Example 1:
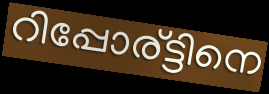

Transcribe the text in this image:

റിപ്പോര്ട്ടിനെ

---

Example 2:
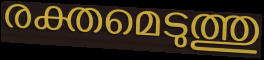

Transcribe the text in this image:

രക്തമെടുത്തു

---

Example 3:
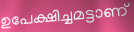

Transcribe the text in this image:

ഉപേക്ഷിച്ചമട്ടാണ്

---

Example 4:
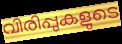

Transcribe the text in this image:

വിരിപ്പുകളുടെ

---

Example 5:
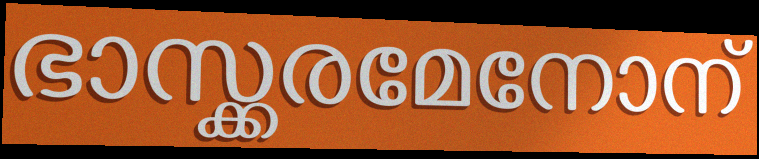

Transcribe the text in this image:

ഭാസ്ക്കരമേനോന്